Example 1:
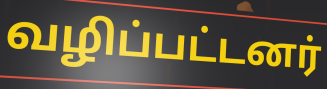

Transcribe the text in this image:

வழிப்பட்டனர்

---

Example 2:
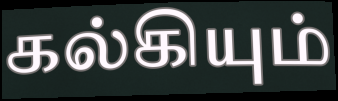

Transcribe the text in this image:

கல்கியும்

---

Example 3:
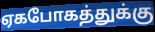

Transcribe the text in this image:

ஏகபோகத்துக்கு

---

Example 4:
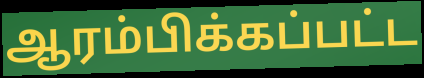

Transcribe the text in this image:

ஆரம்பிக்கப்பட்ட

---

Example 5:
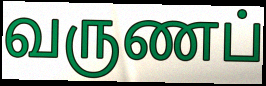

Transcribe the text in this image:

வருணப்